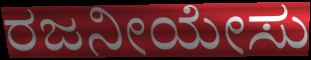
ರಜನೀಯೇಸು